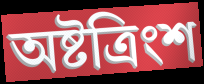
অষ্টত্রিংশ